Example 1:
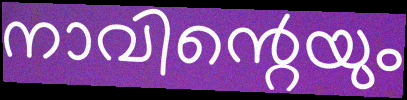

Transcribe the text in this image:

നാവിന്റെയും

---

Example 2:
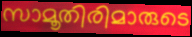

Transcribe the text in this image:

സാമൂതിരിമാരുടെ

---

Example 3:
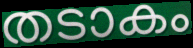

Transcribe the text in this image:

തടാകം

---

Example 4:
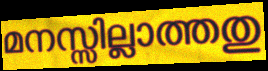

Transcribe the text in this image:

മനസ്സില്ലാത്തതു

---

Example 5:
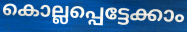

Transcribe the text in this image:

കൊല്ലപ്പെട്ടേക്കാം